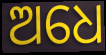
ଅଧେ